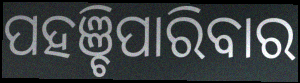
ପହଞ୍ଚିପାରିବାର